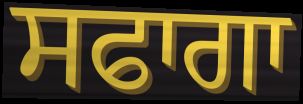
ਸਫਾਗਾ